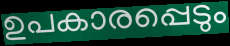
ഉപകാരപ്പെടും